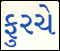
ફુરચે